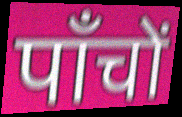
पाँचों